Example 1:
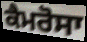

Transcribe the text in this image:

ਕੈਮਰੋਸਾ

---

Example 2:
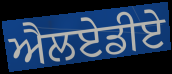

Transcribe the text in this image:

ਐਲਏਡੀਏ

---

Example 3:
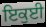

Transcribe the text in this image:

ਇਕੁਈ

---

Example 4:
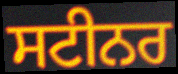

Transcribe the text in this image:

ਸਟੀਨਰ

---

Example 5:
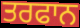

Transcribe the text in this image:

ਤਰਫਾਨ